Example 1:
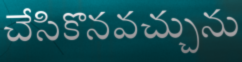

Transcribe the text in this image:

చేసికొనవచ్చును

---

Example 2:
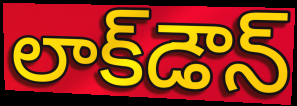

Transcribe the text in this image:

లాక్‌డౌన్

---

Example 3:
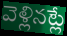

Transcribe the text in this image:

వెళ్లినట్లే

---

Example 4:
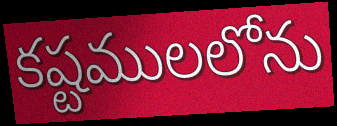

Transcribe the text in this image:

కష్టములలోను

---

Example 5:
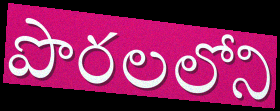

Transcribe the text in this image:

పొరలలోని